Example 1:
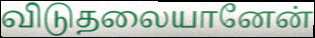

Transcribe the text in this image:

விடுதலையானேன்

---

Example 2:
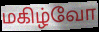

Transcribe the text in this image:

மகிழ்வோ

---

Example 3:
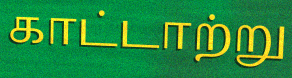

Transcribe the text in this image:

காட்டாற்று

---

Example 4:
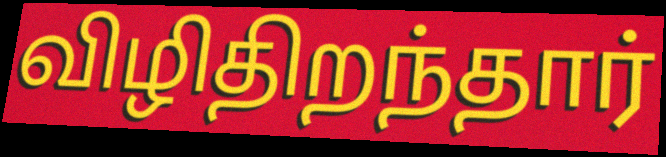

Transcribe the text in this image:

விழிதிறந்தார்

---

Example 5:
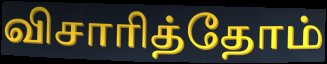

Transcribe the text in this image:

விசாரித்தோம்